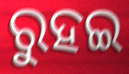
ରୁହଇ